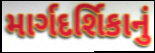
માર્ગદર્શિકાનું